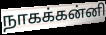
நாகக்கன்னி